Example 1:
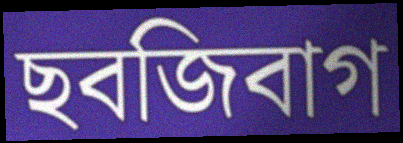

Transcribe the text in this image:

ছবজিবাগ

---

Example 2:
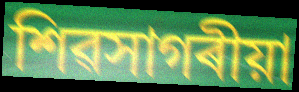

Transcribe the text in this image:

শিৱসাগৰীয়া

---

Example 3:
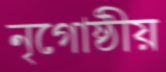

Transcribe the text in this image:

নৃগোষ্ঠীয়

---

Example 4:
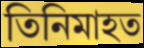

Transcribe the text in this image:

তিনিমাহত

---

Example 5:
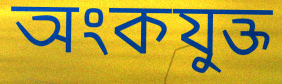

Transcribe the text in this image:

অংকযুক্ত